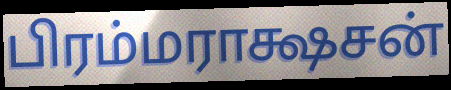
பிரம்மராக்ஷசன்